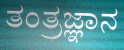
ತಂತ್ರಜ್ಞಾನ